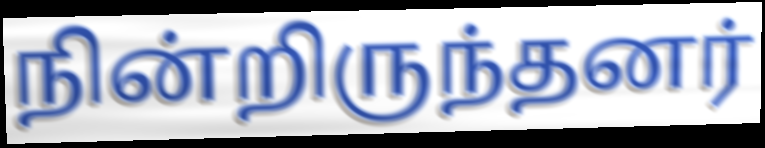
நின்றிருந்தனர்